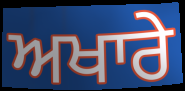
ਅਖਾਰੇ